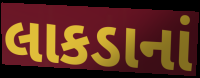
લાકડાનાં